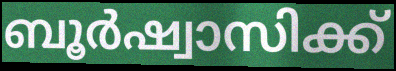
ബൂർഷ്വാസിക്ക്